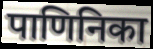
पाणिनिका